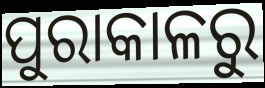
ପୁରାକାଳରୁ